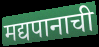
मद्यपानाची